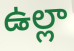
ఉల్లా